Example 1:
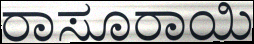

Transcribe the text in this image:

ರಾಸೂರಾಯಿ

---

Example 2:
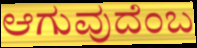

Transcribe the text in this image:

ಆಗುವುದೆಂಬ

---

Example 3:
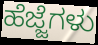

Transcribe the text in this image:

ಹೆಜ್ಜೆಗಳು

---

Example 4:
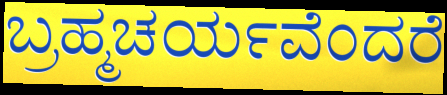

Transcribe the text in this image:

ಬ್ರಹ್ಮಚರ್ಯವೆಂದರೆ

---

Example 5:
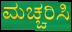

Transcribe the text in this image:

ಮಚ್ಚರಿಸಿ